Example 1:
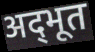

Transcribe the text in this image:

अद्‌भूत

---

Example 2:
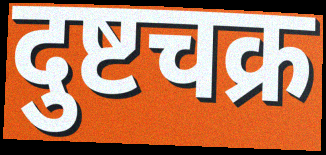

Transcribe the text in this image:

दुष्टचक्र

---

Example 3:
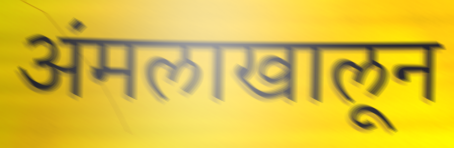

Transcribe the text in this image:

अंमलाखालून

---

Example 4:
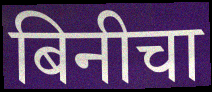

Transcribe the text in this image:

बिनीचा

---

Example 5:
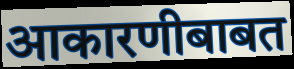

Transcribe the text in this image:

आकारणीबाबत